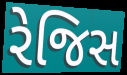
રેજિસ